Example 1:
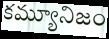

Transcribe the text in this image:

కమ్యూనిజం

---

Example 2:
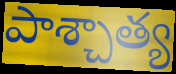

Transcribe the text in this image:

పాశ్చాత్య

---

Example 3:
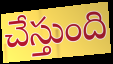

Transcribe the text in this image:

చేస్తుంది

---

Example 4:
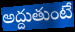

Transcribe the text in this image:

అద్దుతుంటే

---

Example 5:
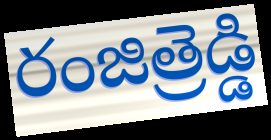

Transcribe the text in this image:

రంజిత్రెడ్డి